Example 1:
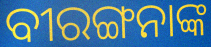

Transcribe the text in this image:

ବୀରଙ୍ଗନାଙ୍କ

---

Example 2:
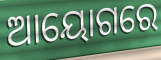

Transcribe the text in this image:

ଆୟୋଗରେ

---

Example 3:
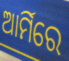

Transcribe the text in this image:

ଆର୍ମିରେ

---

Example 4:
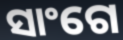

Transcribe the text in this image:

ସାଂଗେ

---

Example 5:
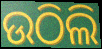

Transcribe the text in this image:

ଉଠିଲି